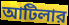
আটিলার